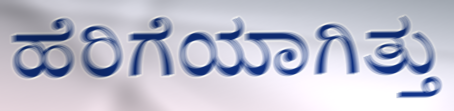
ಹೆರಿಗೆಯಾಗಿತ್ತು